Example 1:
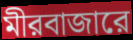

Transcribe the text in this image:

মীরবাজারে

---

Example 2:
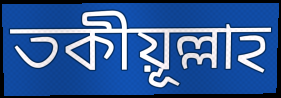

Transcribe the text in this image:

তকীয়ূল্লাহ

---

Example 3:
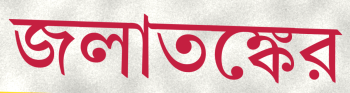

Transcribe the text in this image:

জলাতঙ্কের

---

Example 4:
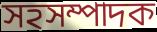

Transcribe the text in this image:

সহসম্পাদক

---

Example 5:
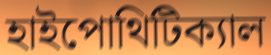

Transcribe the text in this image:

হাইপোথিটিক্যাল